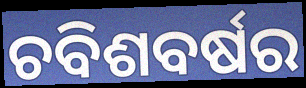
ଚବିଶବର୍ଷର